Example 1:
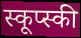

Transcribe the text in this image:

स्कूप्स्की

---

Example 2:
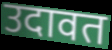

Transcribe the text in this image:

उदावत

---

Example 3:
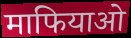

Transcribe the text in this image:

माफियाओ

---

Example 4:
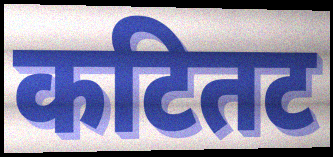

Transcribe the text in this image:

कटितट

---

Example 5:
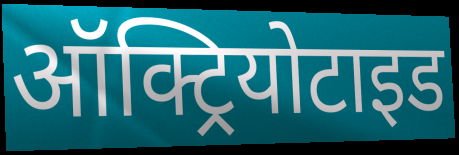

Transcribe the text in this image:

ऑक्ट्रियोटाइड